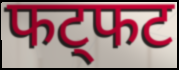
फट्फट